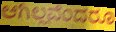
ಆಗಿಲ್ಲವೆಂದರೂ